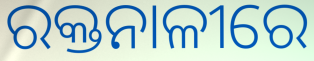
ରକ୍ତନାଳୀରେ